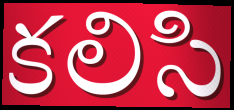
కలిసి